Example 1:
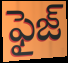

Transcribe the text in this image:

ఫైజ్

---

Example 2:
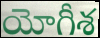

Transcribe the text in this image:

యోగీశ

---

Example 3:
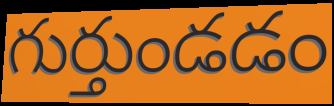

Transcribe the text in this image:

గుర్తుండడం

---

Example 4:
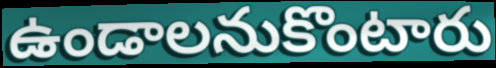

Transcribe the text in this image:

ఉండాలనుకొంటారు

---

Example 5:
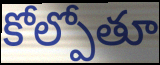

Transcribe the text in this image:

కోల్పోతూ